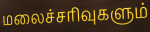
மலைச்சரிவுகளும்